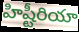
హిష్టీరియా